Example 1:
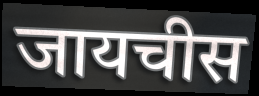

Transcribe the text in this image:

जायचीस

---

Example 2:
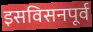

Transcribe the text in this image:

इसविसनपूर्व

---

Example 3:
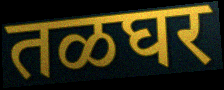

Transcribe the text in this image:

तळघर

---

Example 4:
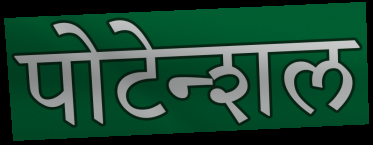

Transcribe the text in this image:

पोटेन्शल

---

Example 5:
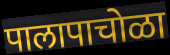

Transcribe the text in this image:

पालापाचोळा